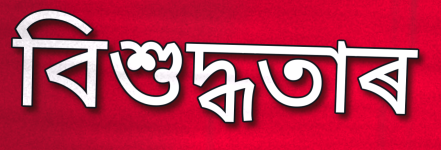
বিশুদ্ধতাৰ